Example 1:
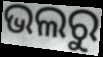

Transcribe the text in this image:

ଭଲରୁ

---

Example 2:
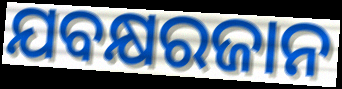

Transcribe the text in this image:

ଯବକ୍ଷରଜାନ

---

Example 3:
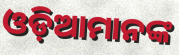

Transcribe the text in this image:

ଓଡ଼ିଆମାନଙ୍କ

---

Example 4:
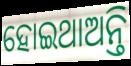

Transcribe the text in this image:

ହୋଇଥାଅନ୍ତି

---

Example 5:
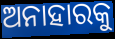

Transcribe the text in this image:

ଅନାହାରକୁ